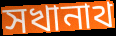
সখানাথ